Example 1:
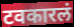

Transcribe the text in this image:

टवकारलं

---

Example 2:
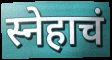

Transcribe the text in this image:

स्नेहाचं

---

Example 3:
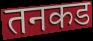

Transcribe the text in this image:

तनकड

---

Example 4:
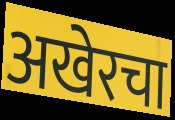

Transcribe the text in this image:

अखेरचा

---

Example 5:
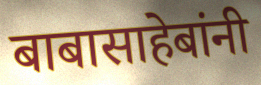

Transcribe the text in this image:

बाबासाहेबांनी